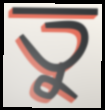
তু